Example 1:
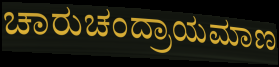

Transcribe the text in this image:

ಚಾರುಚಂದ್ರಾಯಮಾಣ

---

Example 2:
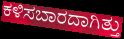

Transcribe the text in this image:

ಕಳಿಸಬಾರದಾಗಿತ್ತು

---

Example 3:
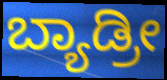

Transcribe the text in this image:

ಬ್ಯಾಡ್ರೀ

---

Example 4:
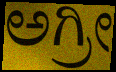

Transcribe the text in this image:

ಅಗ್ರೀ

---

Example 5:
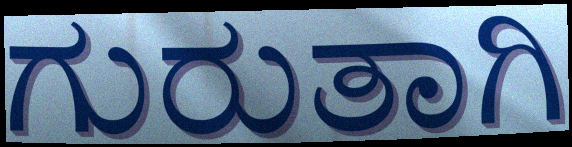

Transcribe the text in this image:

ಗುರುತಾಗಿ